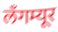
लँगम्यूर